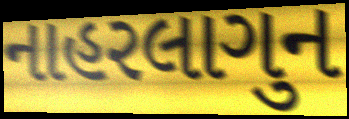
નાહરલાગુન